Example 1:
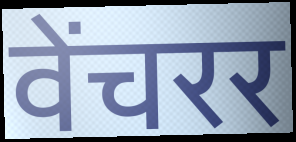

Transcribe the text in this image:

वेंचरर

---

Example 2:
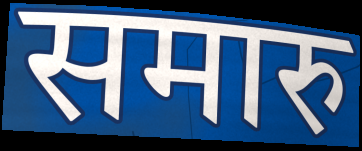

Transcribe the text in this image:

समारु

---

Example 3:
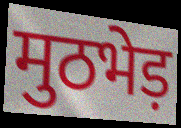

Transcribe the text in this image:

मुठभेड़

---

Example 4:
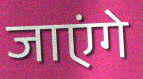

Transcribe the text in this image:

जाएंगे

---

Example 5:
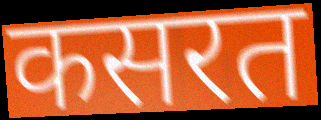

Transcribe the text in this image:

कसरत